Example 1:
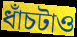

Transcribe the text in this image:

ধাঁচটাও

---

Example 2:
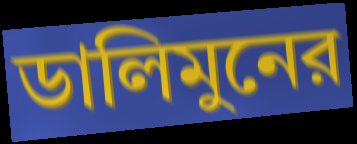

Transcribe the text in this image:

ডালিমুনের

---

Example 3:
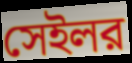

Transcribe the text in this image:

সেইলর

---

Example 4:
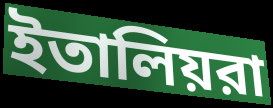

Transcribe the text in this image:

ইতালিয়রা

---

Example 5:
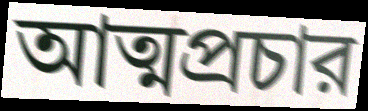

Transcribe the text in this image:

আত্মপ্রচার